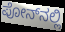
ಪೋನ್‍ನಲ್ಲಿ